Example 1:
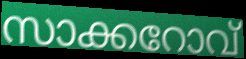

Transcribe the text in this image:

സാക്കറോവ്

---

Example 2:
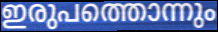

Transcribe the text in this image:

ഇരുപത്തൊന്നും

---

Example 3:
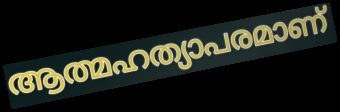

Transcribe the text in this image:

ആത്മഹത്യാപരമാണ്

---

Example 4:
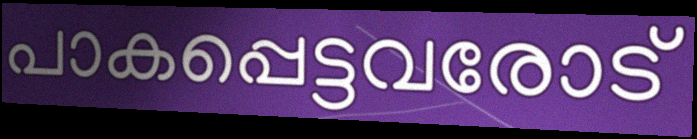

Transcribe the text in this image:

പാകപ്പെട്ടവരോട്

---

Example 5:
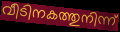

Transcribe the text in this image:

വീടിനകത്തുനിന്ന്